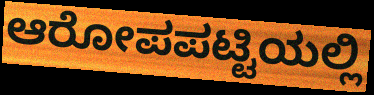
ಆರೋಪಪಟ್ಟಿಯಲ್ಲಿ